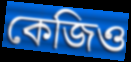
কেজিও